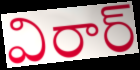
విరార్